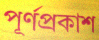
পূর্ণপ্রকাশ